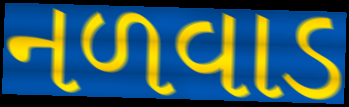
નળવાડ